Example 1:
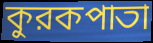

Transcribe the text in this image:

কুরকপাতা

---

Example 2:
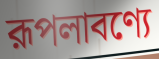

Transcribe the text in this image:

রূপলাবণ্যে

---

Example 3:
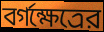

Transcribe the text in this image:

বর্গক্ষেত্রের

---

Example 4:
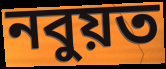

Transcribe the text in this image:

নবুয়ত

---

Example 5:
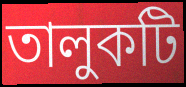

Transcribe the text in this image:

তালুকটি